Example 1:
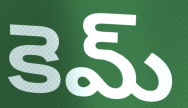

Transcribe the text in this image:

కెమ్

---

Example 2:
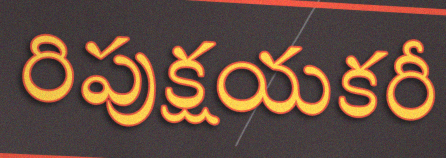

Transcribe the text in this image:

రిపుక్షయకరీ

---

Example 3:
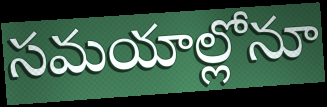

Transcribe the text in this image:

సమయాల్లోనూ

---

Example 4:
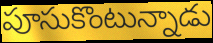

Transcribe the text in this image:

పూసుకొంటున్నాడు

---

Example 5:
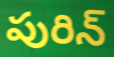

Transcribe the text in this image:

పురిన్